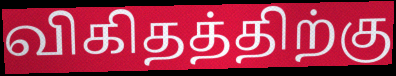
விகிதத்திற்கு